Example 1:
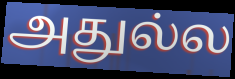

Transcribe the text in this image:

அதுல்ல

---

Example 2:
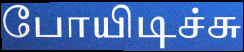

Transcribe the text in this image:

போயிடிச்சு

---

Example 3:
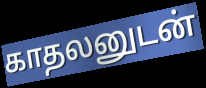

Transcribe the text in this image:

காதலனுடன்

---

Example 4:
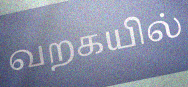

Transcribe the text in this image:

வறகயில்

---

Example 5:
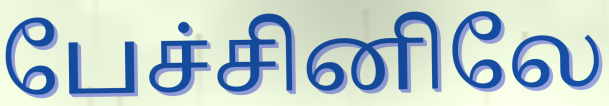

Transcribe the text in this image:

பேச்சினிலே